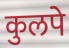
कुलपे